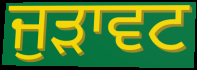
ਜੁੜਾਵਟ